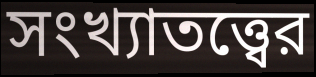
সংখ্যাতত্ত্বের